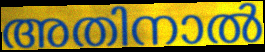
അതിനാൽ